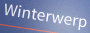
Winterwerp